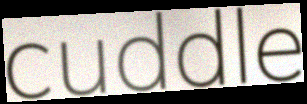
cuddle